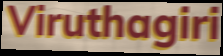
Viruthagiri